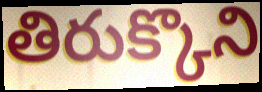
తిరుక్కొని